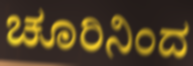
ಚೂರಿನಿಂದ